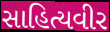
સાહિત્યવીર